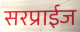
सरप्राईज